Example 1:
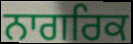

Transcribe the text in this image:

ਨਾਗਰਿਕ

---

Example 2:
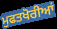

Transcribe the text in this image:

ਮੁਫਤਖੋਰੀਆਂ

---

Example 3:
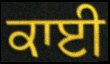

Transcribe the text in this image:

ਕਾਈ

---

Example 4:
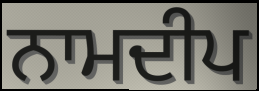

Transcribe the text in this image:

ਨਾਮਦੀਪ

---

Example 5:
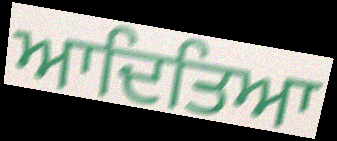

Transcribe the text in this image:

ਆਦਿਤਿਆ